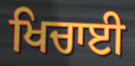
ਖਿਚਾਈ